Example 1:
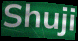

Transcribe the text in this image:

Shuji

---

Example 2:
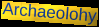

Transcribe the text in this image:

Archaeolohy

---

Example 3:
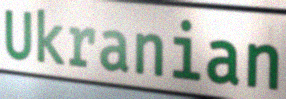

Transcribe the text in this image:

Ukranian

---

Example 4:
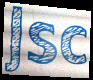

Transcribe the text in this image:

Jsc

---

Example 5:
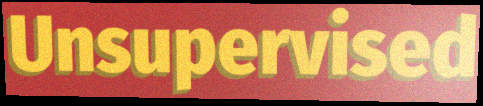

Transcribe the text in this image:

Unsupervised